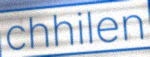
chhilen